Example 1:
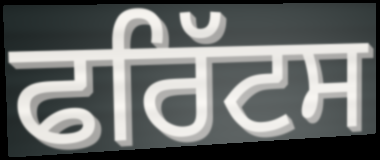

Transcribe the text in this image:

ਫਰਿੱਟਸ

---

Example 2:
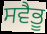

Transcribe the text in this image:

ਸਵੈਭੂ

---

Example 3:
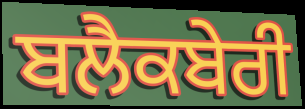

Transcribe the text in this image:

ਬਲੈਕਬੇਰੀ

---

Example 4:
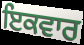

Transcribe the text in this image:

ਇਕਵਾਰ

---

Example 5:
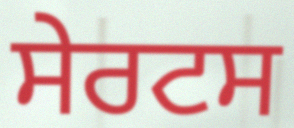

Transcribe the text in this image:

ਸੇਰਟਸ